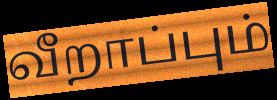
வீறாப்பும்